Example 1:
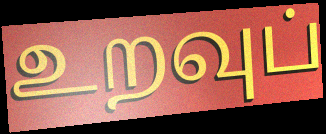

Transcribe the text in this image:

உறவுப்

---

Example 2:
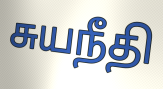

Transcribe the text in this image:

சுயநீதி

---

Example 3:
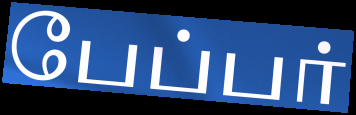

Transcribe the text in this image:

பேப்பர்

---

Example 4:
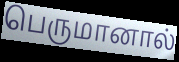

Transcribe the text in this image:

பெருமானால்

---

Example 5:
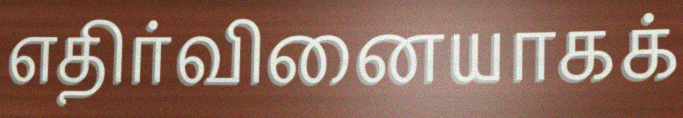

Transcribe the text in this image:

எதிர்வினையாகக்